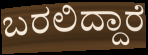
ಬರಲಿದ್ದಾರೆ